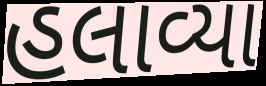
હલાવ્યા